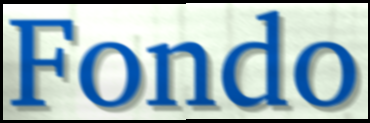
Fondo